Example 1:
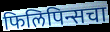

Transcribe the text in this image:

फिलिपिन्सचा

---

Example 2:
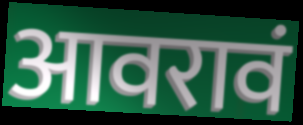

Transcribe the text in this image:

आवरावं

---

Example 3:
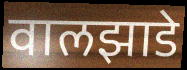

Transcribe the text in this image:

वालझाडे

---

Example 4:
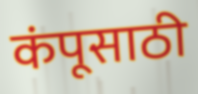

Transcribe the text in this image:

कंपूसाठी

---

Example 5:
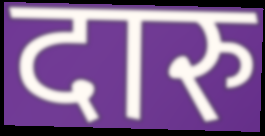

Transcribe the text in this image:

दारु